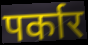
पर्कार